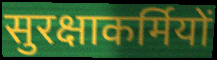
सुरक्षाकर्मियों